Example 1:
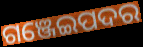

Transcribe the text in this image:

ଗଞ୍ଜେଇପଦର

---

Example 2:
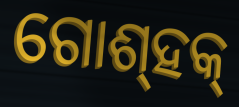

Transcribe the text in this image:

ଗୋଶ୍‍ହକ୍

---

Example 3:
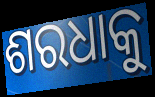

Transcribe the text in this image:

ଶରଧାକୁ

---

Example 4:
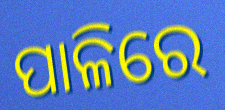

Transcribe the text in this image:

ପାଳିରେ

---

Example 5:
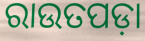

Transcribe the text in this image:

ରାଉତପଡ଼ା